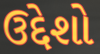
ઉદ્દેશો